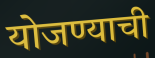
योजण्याची